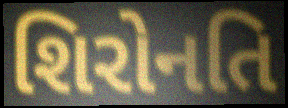
શિરોનતિ